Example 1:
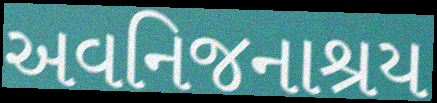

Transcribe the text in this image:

અવનિજનાશ્રય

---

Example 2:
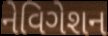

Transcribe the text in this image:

નેવિગેશન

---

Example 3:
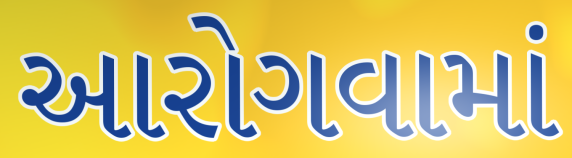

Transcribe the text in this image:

આરોગવામાં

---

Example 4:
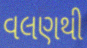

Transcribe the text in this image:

વલણથી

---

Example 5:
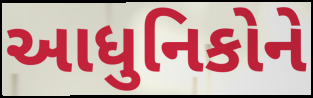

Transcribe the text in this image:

આધુનિકોને